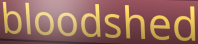
bloodshed